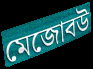
মেজোবউ